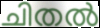
ചിതൽ